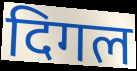
दिगल